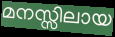
മനസ്സിലായ